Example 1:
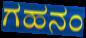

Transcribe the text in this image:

ಗಹನಂ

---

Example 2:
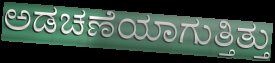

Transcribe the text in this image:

ಅಡಚಣೆಯಾಗುತ್ತಿತ್ತು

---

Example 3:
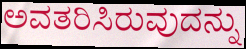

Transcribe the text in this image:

ಅವತರಿಸಿರುವುದನ್ನು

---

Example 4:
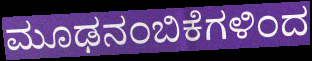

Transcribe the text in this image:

ಮೂಢನಂಬಿಕೆಗಳಿಂದ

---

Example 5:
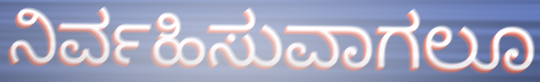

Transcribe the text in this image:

ನಿರ್ವಹಿಸುವಾಗಲೂ